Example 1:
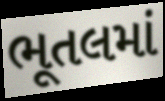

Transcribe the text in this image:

ભૂતલમાં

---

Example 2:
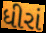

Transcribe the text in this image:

ધીરાં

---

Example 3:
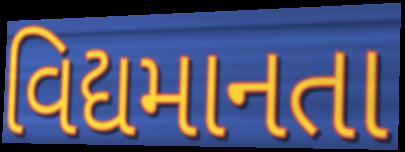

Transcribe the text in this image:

વિદ્યમાનતા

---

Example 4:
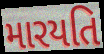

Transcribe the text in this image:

મારયતિ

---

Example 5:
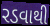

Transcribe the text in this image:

રડવાથી